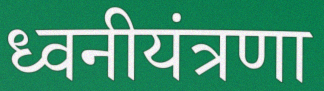
ध्वनीयंत्रणा